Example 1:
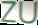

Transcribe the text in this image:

ZU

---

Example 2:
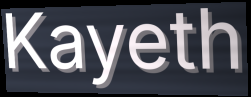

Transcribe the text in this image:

Kayeth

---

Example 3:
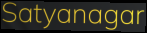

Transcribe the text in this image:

Satyanagar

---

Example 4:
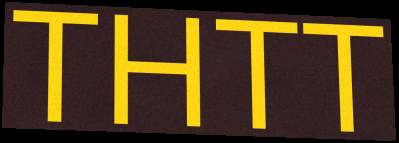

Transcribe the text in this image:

THTT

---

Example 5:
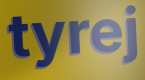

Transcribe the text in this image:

tyrej